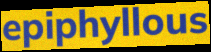
epiphyllous